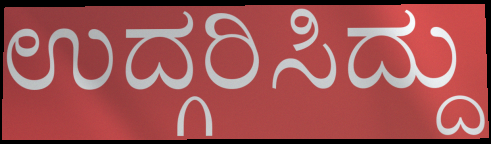
ಉದ್ಗರಿಸಿದ್ದು